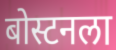
बोस्टनला